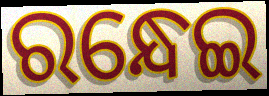
ରନ୍ଧେଇ